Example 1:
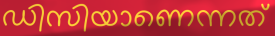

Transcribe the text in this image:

ഡിസിയാണെന്നത്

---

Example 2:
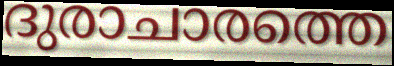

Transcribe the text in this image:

ദുരാചാരത്തെ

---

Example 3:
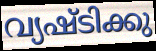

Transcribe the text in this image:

വ്യഷ്ടിക്കു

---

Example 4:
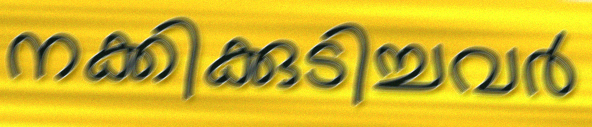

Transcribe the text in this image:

നക്കിക്കുടിച്ചവർ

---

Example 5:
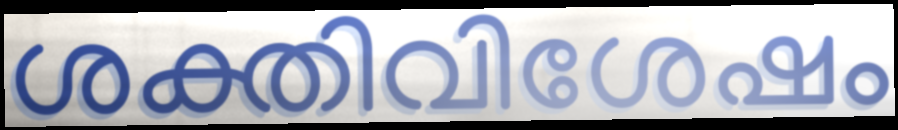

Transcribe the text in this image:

ശക്തിവിശേഷം